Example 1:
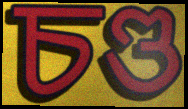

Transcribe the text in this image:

চণ্ড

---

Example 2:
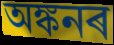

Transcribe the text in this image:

অঙ্কনৰ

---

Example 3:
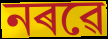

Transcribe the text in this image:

নৰৱে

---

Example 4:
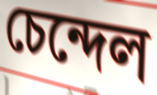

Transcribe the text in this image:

চেন্দেল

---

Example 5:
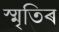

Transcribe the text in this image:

স্মৃতিৰ